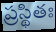
ప్రస్థితః